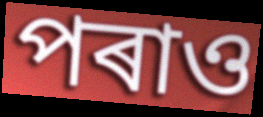
পৰাও